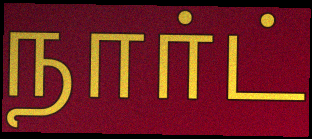
நார்ட்